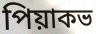
পিয়াকভ